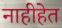
नाहीहेत